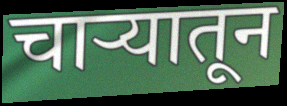
चाऱ्यातून